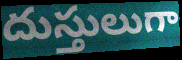
దుస్తులుగా